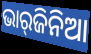
ଭାର୍‌ଜିନିଆ